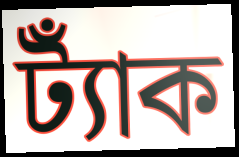
ট্যাঁক